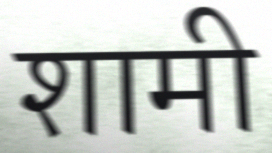
शामी